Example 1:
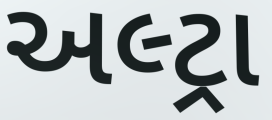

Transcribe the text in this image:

અલ્ટ્રા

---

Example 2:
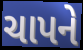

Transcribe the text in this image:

ચાપને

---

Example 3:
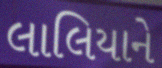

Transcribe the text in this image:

લાલિયાને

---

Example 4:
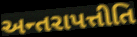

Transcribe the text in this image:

અન્તરાપત્તીતિ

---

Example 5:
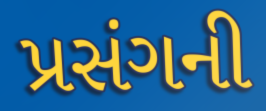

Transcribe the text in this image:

પ્રસંગની